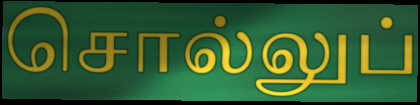
சொல்லுப்